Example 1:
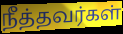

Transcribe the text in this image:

நீத்தவர்கள்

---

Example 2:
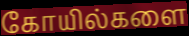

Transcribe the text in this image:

கோயில்களை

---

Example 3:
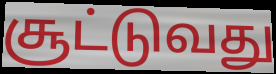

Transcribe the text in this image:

சூட்டுவது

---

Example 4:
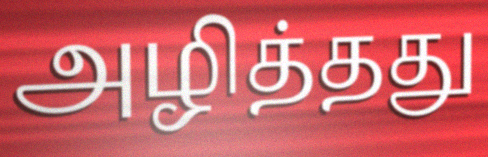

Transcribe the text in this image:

அழித்தது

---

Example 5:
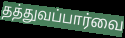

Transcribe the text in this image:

தத்துவப்பார்வை